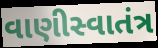
વાણીસ્વાતંત્ર